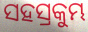
ସହସ୍ରକୁମ୍ଭ